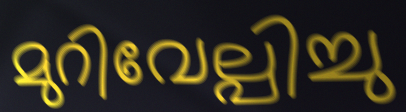
മുറിവേല്പിച്ചു